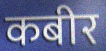
कबीर